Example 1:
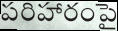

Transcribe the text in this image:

పరిహారంపై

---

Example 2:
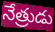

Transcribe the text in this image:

నేత్రుడు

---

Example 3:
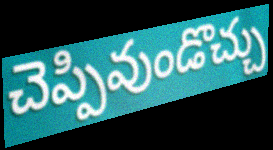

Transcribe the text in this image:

చెప్పివుండొచ్చు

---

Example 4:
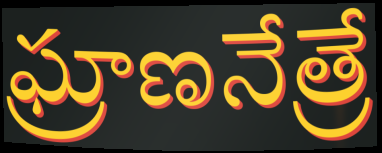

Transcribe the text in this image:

ఘ్రాణనేత్రే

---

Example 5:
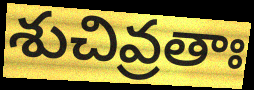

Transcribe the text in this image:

శుచివ్రతాః